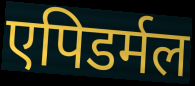
एपिडर्मल